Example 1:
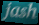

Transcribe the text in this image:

jash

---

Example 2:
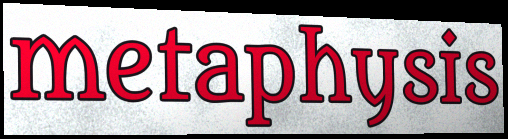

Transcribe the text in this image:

metaphysis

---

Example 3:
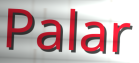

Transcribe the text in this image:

Palar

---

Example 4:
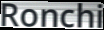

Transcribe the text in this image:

Ronchi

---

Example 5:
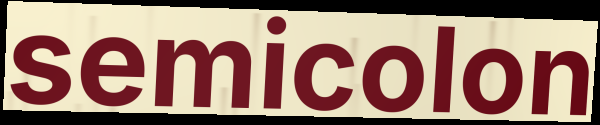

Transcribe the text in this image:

semicolon